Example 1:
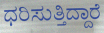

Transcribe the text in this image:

ಧರಿಸುತ್ತಿದ್ದಾರೆ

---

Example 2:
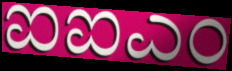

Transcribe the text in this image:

ಐಐಎಂ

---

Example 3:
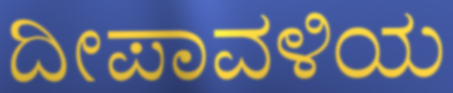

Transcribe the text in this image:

ದೀಪಾವಳಿಯ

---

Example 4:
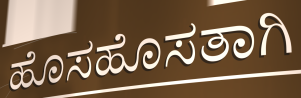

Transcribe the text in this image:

ಹೊಸಹೊಸತಾಗಿ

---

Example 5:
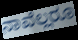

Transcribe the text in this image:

ನಾವೆಲ್ಲರೂ